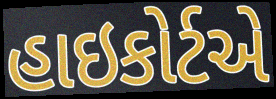
હાઇકોર્ટએ